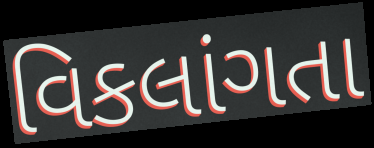
વિકલાંગતા